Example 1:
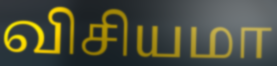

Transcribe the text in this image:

விசியமா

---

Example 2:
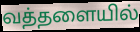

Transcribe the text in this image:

வத்தளையில்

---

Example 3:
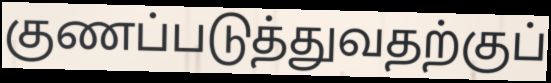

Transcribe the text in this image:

குணப்படுத்துவதற்குப்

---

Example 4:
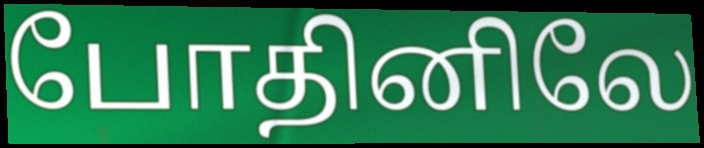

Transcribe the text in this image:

போதினிலே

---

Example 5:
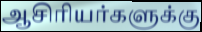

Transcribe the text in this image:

ஆசிரியர்களுக்கு